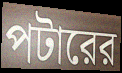
পটারের